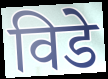
विडे